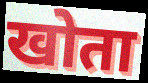
खोता